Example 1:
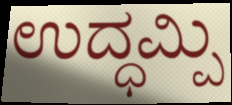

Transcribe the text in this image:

ಉದ್ಧಮ್ಪಿ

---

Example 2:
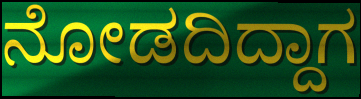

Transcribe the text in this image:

ನೋಡದಿದ್ದಾಗ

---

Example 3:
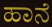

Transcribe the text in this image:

ಹಾನೆ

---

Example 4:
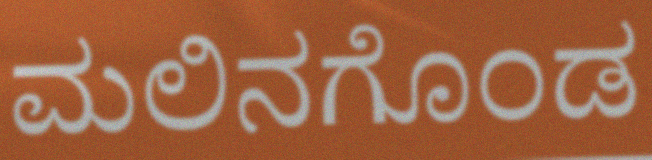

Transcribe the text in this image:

ಮಲಿನಗೊಂಡ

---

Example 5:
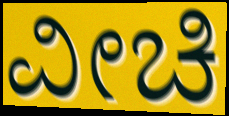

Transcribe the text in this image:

ವೀಚಿ